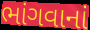
ભાંગવાનાં